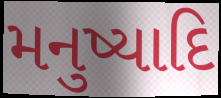
મનુષ્યાદિ